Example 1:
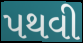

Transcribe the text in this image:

પથવી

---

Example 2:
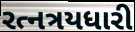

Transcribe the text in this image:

રત્નત્રયધારી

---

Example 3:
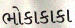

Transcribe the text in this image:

ભોકાકાકા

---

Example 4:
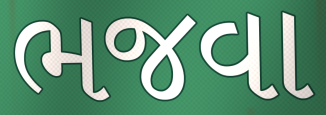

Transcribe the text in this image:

ભજવા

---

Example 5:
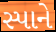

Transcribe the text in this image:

સ્પાને